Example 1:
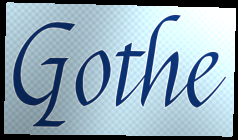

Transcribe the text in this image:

Gothe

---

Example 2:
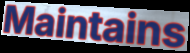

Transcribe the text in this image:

Maintains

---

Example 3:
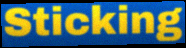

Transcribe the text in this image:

Sticking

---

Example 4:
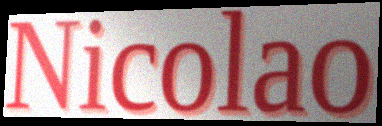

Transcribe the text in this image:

Nicolao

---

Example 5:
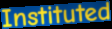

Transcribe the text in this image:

Instituted